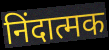
निंदात्मक